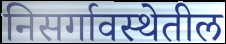
निसर्गावस्थेतील